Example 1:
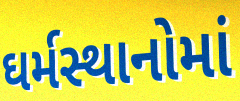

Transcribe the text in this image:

ઘર્મસ્થાનોમાં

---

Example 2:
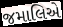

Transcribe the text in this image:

જમાલિએ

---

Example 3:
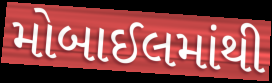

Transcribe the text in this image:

મોબાઈલમાંથી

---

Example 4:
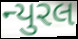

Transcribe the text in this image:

ન્યુરલ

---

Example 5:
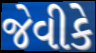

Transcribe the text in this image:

જેવીકે